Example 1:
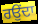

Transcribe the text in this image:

ਰਉਂਦਾ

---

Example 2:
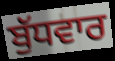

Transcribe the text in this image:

ਬੁੱਧਵਾਰ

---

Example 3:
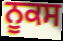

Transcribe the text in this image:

ਨੂਕਸ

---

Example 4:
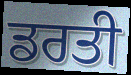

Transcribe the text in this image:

ਡਰਤੀ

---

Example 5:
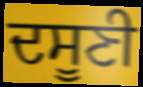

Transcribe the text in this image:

ਦਸੂਣੀ